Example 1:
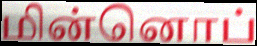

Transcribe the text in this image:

மின்னொப்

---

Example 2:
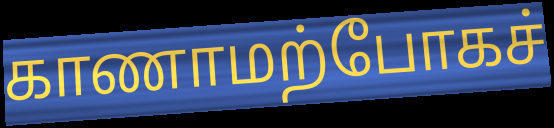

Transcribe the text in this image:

காணாமற்போகச்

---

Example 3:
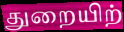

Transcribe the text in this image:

துறையிற்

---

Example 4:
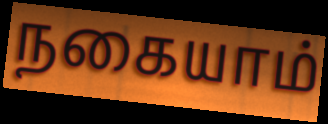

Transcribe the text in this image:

நகையாம்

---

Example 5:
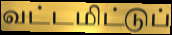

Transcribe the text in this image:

வட்டமிட்டுப்